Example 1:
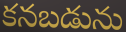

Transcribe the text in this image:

కనబడును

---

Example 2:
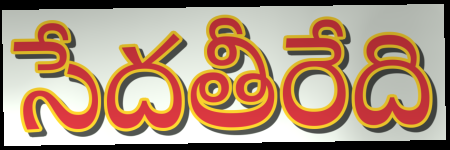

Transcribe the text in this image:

సేదతీరేది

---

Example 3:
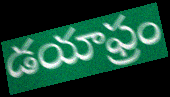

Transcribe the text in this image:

డయాఫ్రం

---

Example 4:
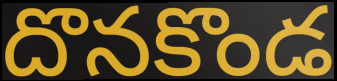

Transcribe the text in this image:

దొనకొండ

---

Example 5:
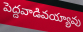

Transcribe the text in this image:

పెద్దవాడివయ్యావు